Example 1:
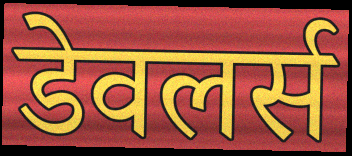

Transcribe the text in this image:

डेवलर्स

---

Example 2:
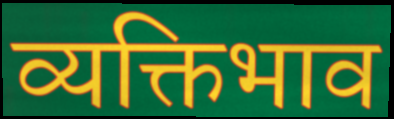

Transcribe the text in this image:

व्यक्तिभाव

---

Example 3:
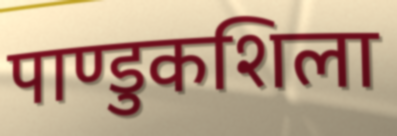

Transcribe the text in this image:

पाण्डुकशिला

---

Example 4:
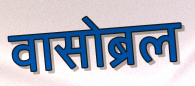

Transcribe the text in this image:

वासोब्रल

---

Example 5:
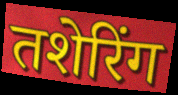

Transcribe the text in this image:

तशेरिंग